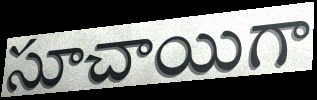
సూచాయిగా